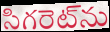
సిగరెట్‌ను